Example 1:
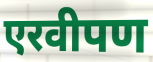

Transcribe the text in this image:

एरवीपण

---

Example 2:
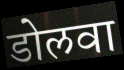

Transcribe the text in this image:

डोलवा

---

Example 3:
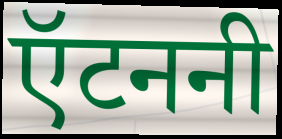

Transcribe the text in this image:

ऍटननी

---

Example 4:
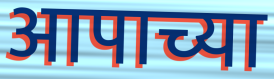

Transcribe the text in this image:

आपाच्या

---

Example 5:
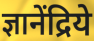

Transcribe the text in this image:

ज्ञानेंद्रिये